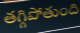
తగ్గిపోతుంది